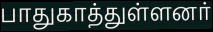
பாதுகாத்துள்ளனர்